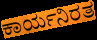
ಕಾರ್ಯನಿರತ